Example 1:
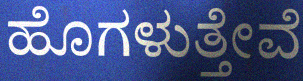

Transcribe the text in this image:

ಹೊಗಳುತ್ತೇವೆ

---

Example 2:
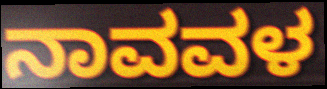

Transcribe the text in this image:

ನಾವವಳ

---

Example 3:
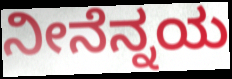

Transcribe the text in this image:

ನೀನೆನ್ನಯ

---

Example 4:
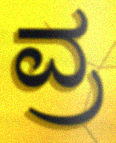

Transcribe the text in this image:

ವ್ರ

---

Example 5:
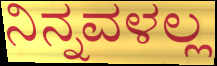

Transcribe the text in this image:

ನಿನ್ನವಳಲ್ಲ